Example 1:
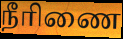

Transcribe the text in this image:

நீரிணை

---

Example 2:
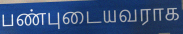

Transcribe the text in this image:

பண்புடையவராக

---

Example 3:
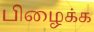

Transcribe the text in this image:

பிழைக்க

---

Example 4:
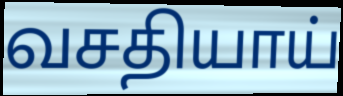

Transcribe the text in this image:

வசதியாய்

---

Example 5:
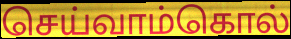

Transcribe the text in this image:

செய்வாம்கொல்